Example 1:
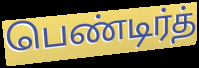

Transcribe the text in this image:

பெண்டிர்த்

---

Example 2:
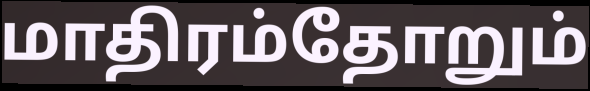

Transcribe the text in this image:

மாதிரம்தோறும்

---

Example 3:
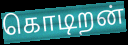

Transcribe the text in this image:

கொடிறன்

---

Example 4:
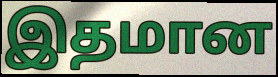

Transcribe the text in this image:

இதமான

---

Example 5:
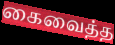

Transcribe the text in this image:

கைவைத்த